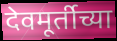
देवमूर्तीच्या